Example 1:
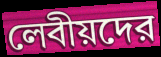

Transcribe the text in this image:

লেবীয়দের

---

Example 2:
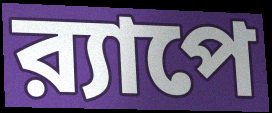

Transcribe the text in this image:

র‍্যাপে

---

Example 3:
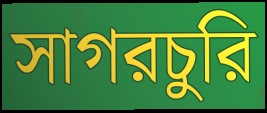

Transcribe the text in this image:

সাগরচুরি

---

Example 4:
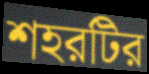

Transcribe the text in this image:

শহরটির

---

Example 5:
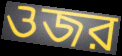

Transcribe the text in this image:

ওজর